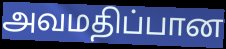
அவமதிப்பான